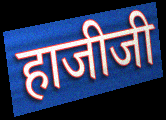
हाजीजी